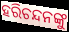
ହରିଚନ୍ଦନଙ୍କୁ